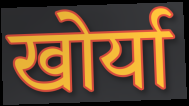
खोर्या